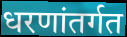
धरणांतर्गत